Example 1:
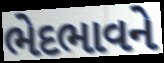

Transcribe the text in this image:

ભેદભાવને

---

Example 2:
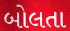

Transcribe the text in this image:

બોલતા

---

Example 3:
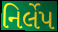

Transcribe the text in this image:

નિર્લેપ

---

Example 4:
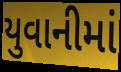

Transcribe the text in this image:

યુવાનીમાં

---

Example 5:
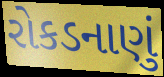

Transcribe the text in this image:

રોકડનાણું